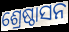
ଶ୍ରେଷ୍ଠାସନ